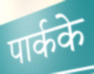
पार्कके